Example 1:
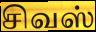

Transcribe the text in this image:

சிவஸ்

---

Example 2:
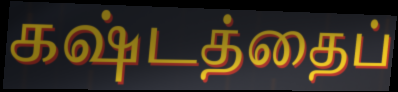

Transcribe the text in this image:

கஷ்டத்தைப்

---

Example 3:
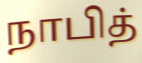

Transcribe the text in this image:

நாபித்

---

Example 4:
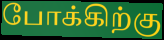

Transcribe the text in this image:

போக்கிற்கு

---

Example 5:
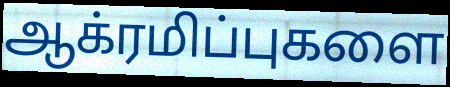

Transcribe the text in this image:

ஆக்ரமிப்புகளை